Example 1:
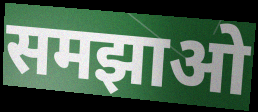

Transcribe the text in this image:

समझाओ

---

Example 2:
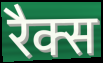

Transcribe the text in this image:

रैक्स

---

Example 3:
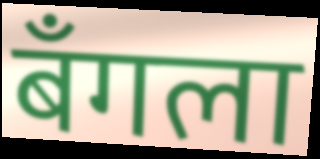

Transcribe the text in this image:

बँगला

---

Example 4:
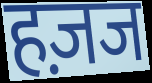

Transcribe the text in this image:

हज़ज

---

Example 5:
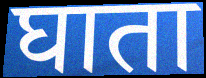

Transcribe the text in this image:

घाता